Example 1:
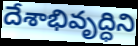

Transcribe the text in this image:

దేశాభివృద్ధిని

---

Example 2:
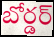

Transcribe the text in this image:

బోర్డర్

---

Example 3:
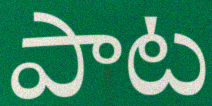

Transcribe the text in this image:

పాట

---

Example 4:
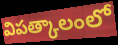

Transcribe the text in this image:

విపత్కాలంలో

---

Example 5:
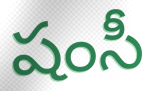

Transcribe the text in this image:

షంసీ